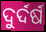
ଦୁର୍ଦର୍ଷ